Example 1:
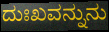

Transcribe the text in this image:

ದುಃಖವನ್ನುನು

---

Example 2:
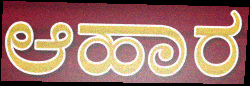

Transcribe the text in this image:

ಆಹಾರ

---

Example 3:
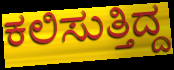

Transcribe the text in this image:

ಕಲಿಸುತ್ತಿದ್ದ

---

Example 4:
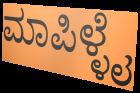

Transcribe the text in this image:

ಮಾಪಿಳ್ಳೈ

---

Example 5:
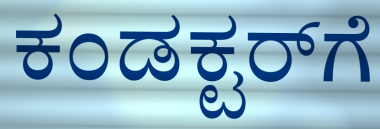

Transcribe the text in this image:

ಕಂಡಕ್ಟರ್‌ಗೆ